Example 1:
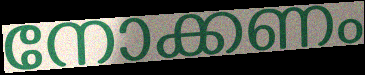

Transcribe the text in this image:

നോക്കണം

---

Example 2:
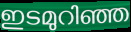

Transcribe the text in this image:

ഇടമുറിഞ്ഞ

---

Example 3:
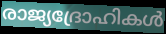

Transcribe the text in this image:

രാജ്യദ്രോഹികൾ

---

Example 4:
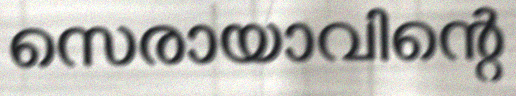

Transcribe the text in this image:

സെരായാവിന്റെ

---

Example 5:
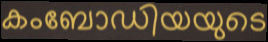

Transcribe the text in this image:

കംബോഡിയയുടെ